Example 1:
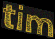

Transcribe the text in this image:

tim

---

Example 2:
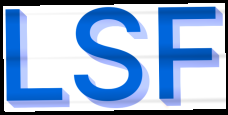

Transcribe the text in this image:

LSF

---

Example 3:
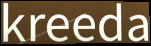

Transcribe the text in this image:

kreeda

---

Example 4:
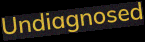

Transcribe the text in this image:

Undiagnosed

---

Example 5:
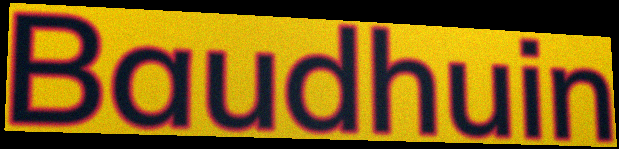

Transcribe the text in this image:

Baudhuin